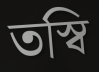
তস্বি